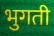
भुगती